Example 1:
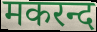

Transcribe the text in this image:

मकरन्द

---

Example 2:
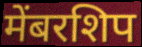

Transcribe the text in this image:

मेंबरशिप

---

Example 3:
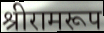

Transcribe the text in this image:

श्रीरामरूप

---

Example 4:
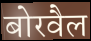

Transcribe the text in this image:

बोरवैल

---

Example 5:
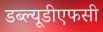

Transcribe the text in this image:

डब्ल्यूडीएफसी